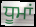
ਧੂਮਾਂ